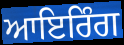
ਆਇਰਿੰਗ